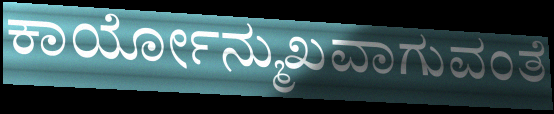
ಕಾರ್ಯೋನ್ಮುಖವಾಗುವಂತೆ